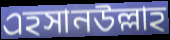
এহসানউল্লাহ